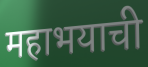
महाभयाची